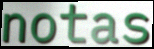
notas